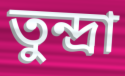
তুন্দ্রা